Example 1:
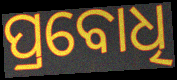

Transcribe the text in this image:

ପ୍ରବୋଧି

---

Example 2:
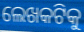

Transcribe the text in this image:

ଲେଖକଟିକୁ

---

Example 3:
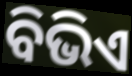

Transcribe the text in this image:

ବିଭିଏ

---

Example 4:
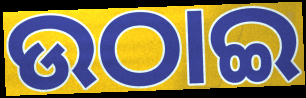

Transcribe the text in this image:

ଉଠାଇ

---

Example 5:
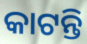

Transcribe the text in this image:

କାଟନ୍ତି